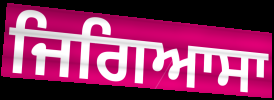
ਜਿਗਿਆਸਾ